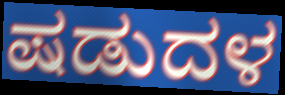
ಷಡುದಳ